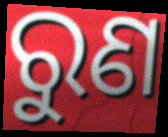
ରୁଣ